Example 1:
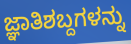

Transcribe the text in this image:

ಜ್ಞಾತಿಶಬ್ದಗಳನ್ನು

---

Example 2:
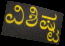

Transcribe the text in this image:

ವಿಶಿಷ್ಟ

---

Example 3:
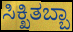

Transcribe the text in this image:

ಸಿಕ್ಖಿತಬ್ಬಾ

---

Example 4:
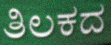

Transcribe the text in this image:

ತಿಲಕದ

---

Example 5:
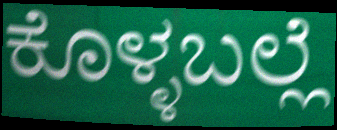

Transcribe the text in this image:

ಕೊಳ್ಳಬಲ್ಲೆ